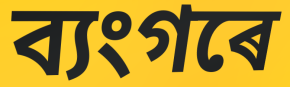
ব্যংগৰে